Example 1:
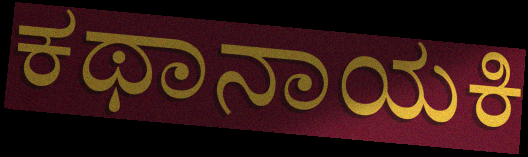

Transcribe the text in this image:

ಕಥಾನಾಯಕಿ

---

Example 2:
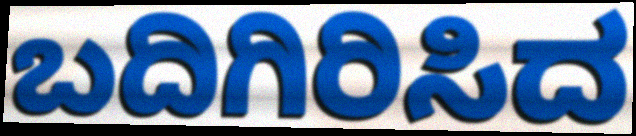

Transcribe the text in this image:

ಬದಿಗಿರಿಸಿದ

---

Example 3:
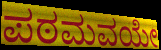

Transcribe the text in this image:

ಪಠಮವಯೇ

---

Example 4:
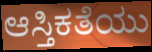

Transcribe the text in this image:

ಆಸ್ತಿಕತೆಯು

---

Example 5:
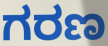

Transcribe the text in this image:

ಗರಣ